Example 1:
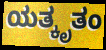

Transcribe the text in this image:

ಯತ್ಕೃತಂ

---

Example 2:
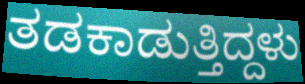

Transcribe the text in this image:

ತಡಕಾಡುತ್ತಿದ್ದಳು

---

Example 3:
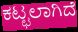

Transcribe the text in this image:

ಕಟ್ಟಲಾಗಿದೆ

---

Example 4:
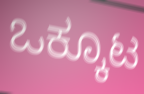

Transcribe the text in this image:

ಒಕ್ಕೂಟ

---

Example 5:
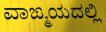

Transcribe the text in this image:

ವಾಙ್ಮಯದಲ್ಲಿ